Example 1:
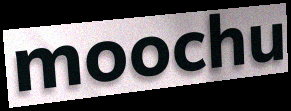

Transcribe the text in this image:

moochu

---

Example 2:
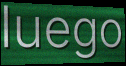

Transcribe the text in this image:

luego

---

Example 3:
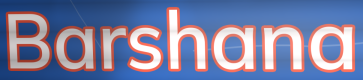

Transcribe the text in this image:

Barshana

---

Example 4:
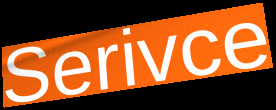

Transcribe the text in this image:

Serivce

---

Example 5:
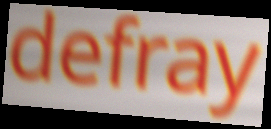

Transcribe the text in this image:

defray